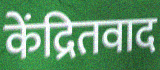
केंद्रितवाद